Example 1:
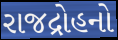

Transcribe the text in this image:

રાજદ્રોહનો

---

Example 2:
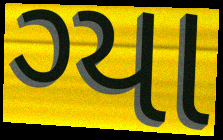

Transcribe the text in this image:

ગ્યા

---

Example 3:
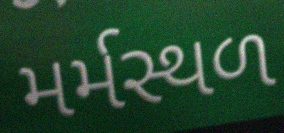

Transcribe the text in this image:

મર્મસ્થળ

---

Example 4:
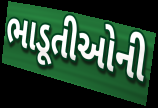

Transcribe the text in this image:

ભાડૂતીઓની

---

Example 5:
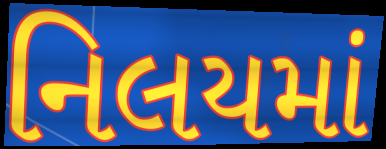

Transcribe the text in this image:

નિલયમાં